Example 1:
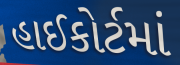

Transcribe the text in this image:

હાઈકોર્ટમાં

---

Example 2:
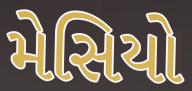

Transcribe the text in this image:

મેસિયો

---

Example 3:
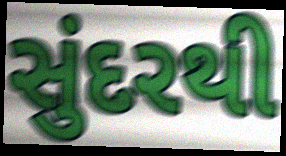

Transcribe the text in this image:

સુંદરથી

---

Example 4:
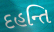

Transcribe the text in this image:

દહન્તિ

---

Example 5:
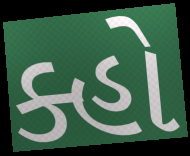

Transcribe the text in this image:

ક્હો